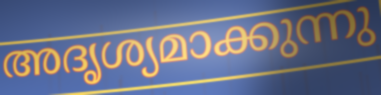
അദൃശ്യമാക്കുന്നു